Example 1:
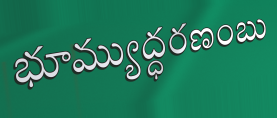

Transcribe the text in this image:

భూమ్యుద్ధరణంబు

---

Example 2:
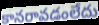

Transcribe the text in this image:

కానరావడంలేదు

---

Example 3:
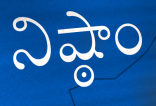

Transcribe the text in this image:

నిష్ఠాం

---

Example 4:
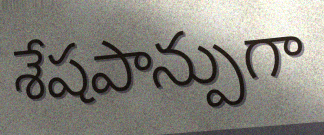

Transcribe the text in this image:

శేషపాన్పుగా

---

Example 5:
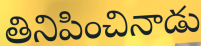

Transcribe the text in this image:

తినిపించినాడు